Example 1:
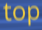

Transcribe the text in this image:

top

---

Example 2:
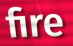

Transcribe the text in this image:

fire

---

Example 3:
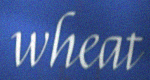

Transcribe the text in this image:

wheat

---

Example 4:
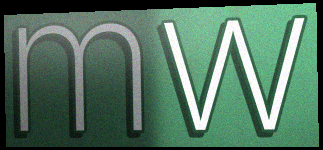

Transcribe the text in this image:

mw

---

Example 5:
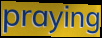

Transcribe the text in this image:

praying